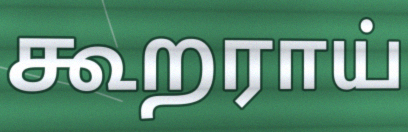
கூறராய்